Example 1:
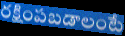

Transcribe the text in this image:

రక్షింపబడాలంటే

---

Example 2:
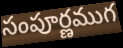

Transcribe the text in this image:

సంపూర్ణముగ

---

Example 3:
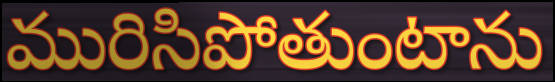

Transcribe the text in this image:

మురిసిపోతుంటాను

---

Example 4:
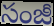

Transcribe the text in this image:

సంజీ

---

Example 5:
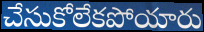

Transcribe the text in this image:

చేసుకోలేకపోయారు